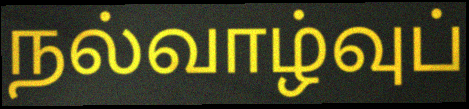
நல்வாழ்வுப்